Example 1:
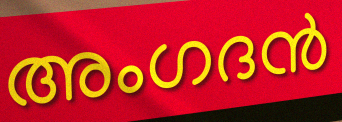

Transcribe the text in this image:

അംഗദൻ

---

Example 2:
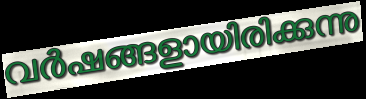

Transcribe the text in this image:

വർഷങ്ങളായിരിക്കുന്നു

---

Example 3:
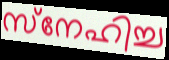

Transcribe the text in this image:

സ്‌നേഹിച്ച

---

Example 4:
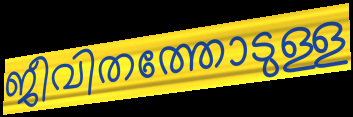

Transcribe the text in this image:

ജീവിതത്തോടുള്ള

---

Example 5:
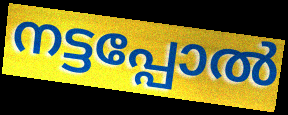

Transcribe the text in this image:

നട്ടപ്പോൽ